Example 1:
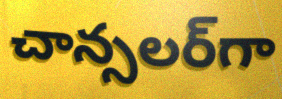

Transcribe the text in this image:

చాన్సలర్‌గా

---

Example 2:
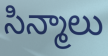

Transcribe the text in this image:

సిన్మాలు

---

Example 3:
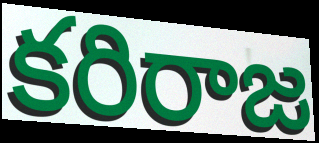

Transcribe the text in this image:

కరిరాజ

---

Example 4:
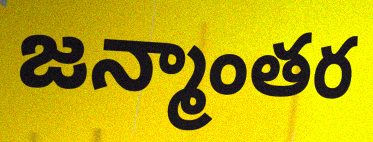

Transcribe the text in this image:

జన్మాంతర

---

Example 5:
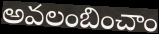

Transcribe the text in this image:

అవలంబించాం